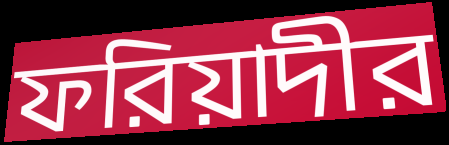
ফরিয়াদীর